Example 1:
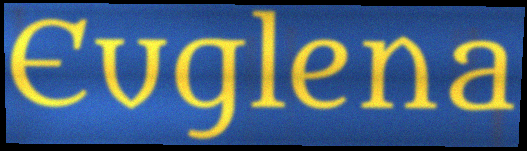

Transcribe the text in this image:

Euglena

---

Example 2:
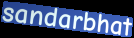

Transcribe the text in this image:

sandarbhat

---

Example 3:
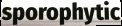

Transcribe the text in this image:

sporophytic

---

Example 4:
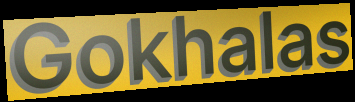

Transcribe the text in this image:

Gokhalas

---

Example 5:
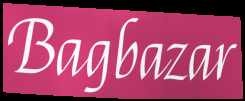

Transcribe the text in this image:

Bagbazar